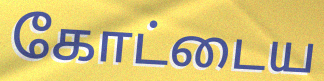
கோட்டைய